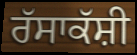
ਰੱਸਾਕੱਸ਼ੀ